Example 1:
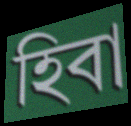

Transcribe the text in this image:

হিবা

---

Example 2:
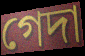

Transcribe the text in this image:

গেদা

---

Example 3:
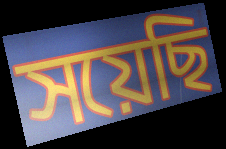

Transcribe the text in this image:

সয়েছি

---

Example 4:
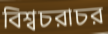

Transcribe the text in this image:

বিশ্বচরাচর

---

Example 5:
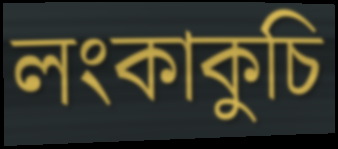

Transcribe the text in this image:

লংকাকুচি